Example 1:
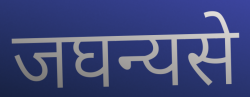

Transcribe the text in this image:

जघन्यसे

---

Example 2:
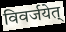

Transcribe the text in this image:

विवर्जयेत्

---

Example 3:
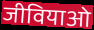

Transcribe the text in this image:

जीवियाओ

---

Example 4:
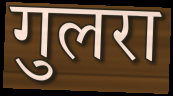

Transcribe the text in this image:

गुलरा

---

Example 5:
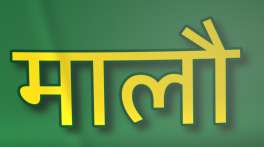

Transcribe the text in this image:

मालौ